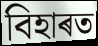
বিহাৰত